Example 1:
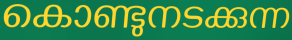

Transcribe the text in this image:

കൊണ്ടുനടക്കുന്ന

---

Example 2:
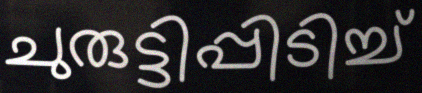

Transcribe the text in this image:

ചുരുട്ടിപ്പിടിച്ച്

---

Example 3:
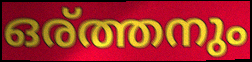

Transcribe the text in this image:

ഒര്ത്തനും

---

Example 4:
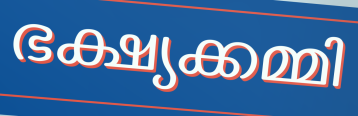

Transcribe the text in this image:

ഭക്ഷ്യക്കമ്മി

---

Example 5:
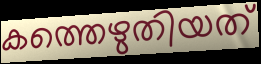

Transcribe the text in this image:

കത്തെഴുതിയത്